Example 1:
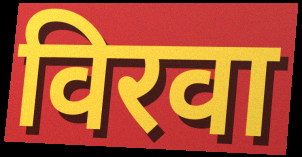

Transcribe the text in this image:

विरवा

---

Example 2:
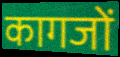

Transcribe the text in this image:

कागजों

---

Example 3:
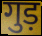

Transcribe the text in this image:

गुड़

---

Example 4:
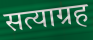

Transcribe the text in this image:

सत्याग्रह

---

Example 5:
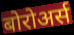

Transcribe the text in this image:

बोरोअर्स